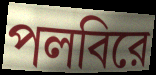
পলবিরে